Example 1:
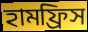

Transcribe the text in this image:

হামফ্রিস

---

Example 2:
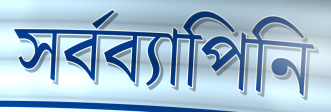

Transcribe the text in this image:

সর্বব্যাপিনি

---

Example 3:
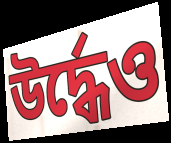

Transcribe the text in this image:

উর্দ্ধেও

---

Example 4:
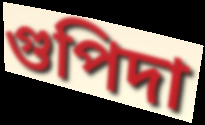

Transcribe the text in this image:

গুপিদা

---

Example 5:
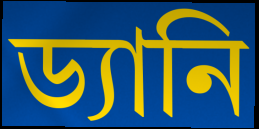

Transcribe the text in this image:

ড্যানি